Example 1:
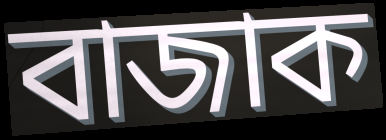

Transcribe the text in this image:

বাজাক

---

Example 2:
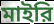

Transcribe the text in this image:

মাইরি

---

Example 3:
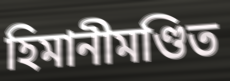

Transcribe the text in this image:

হিমানীমণ্ডিত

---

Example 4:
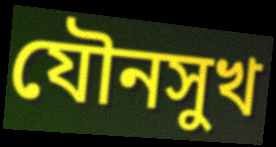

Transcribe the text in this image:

যৌনসুখ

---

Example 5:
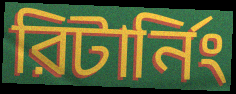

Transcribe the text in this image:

রিটার্নিং